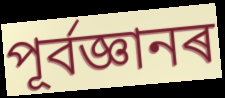
পূৰ্বজ্ঞানৰ